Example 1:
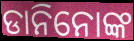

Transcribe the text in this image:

ଡାନିନୋଙ୍କ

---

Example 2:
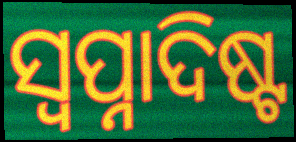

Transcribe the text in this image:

ସ୍ୱପ୍ନାଦିଷ୍ଟ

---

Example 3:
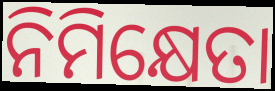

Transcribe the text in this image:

ନିମିକ୍ଷେତା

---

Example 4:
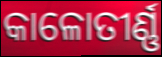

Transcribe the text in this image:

କାଳୋତୀର୍ଣ୍ଣ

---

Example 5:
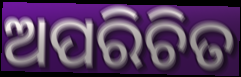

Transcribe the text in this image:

ଅପରିଚିତ